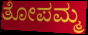
ತೋಪಮ್ಮ